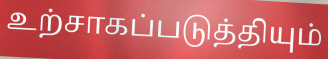
உற்சாகப்படுத்தியும்